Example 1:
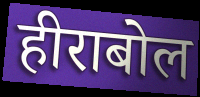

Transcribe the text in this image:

हीराबोल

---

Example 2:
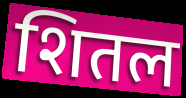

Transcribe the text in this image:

शितल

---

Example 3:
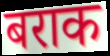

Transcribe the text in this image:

बराक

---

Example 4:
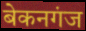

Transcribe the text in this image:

बेकनगंज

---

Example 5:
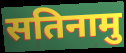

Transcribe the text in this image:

सतिनामु